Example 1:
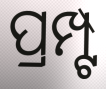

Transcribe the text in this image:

ପ୍ରମ୍ପ୍ଟ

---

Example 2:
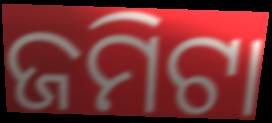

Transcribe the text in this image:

ଜମିଟା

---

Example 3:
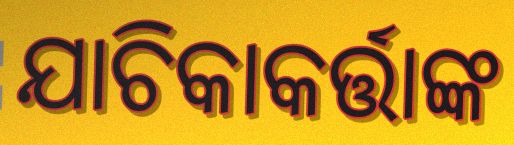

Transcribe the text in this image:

ଯାଚିକାକର୍ତ୍ତାଙ୍କ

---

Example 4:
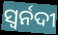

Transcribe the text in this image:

ସ୍ୱର୍ନଦୀ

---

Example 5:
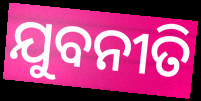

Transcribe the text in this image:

ଯୁବନୀତି